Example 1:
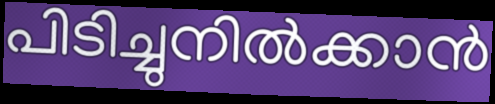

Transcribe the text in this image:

പിടിച്ചുനിൽക്കാൻ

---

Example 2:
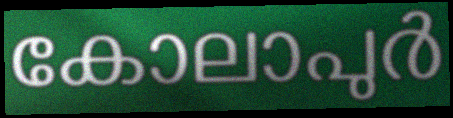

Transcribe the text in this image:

കോലാപുർ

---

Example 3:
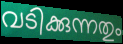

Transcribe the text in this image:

വടിക്കുന്നതും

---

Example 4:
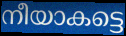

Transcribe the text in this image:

നീയാകട്ടെ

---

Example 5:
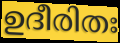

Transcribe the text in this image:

ഉദീരിതഃ